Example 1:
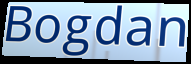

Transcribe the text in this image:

Bogdan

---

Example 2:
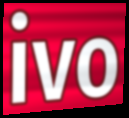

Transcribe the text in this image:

ivo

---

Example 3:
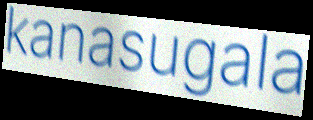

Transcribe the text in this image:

kanasugala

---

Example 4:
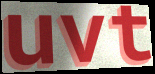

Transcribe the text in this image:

uvt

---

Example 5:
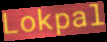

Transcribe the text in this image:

Lokpal